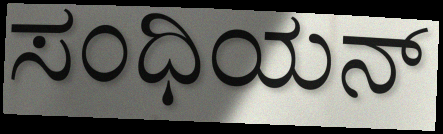
ಸಂಧಿಯನ್